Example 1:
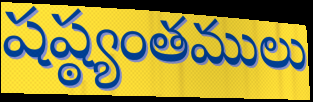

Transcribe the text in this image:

షష్ఠ్యంతములు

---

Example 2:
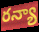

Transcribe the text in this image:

రన్యా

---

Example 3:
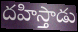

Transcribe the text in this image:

దహిస్తాడు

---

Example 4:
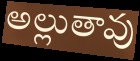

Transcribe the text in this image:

అల్లుతావు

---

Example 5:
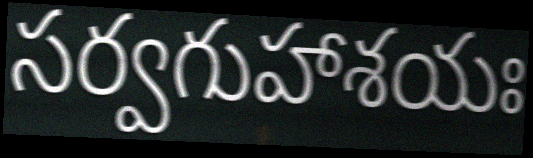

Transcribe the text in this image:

సర్వగుహాశయః